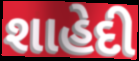
શાહેદી